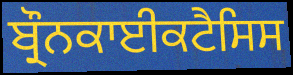
ਬ੍ਰੌਨਕਾਈਕਟੈਸਿਸ